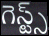
గెస్ట్స్